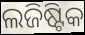
ଲଜିଷ୍ଟିକ